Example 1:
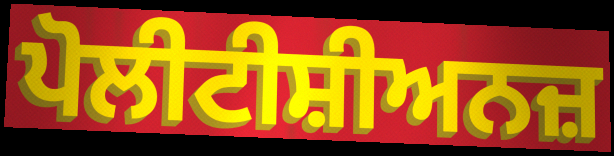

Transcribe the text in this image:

ਪੋਲੀਟੀਸ਼ੀਅਨਜ਼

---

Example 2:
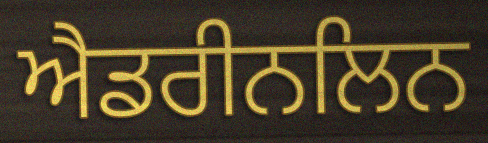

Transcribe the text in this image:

ਐਡਰੀਨਲਿਨ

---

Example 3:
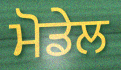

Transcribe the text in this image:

ਮੋਡੇਲ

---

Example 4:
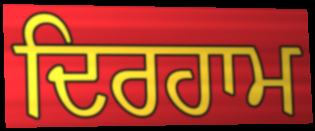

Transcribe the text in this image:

ਦਿਰਹਾਮ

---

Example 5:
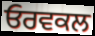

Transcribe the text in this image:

ਓਰਵਕਲ